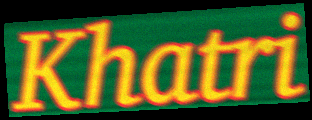
Khatri